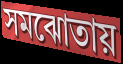
সমঝোতায়